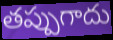
తప్పుగాదు